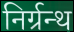
निर्ग्रन्थ